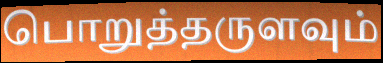
பொறுத்தருளவும்